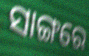
ସାଙ୍ଗରେ